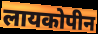
लायकोपीन